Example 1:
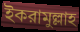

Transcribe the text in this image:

ইকরামুল্লাহ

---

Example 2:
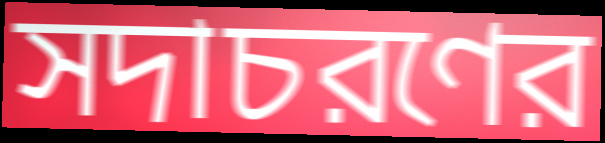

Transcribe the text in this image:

সদাচরণের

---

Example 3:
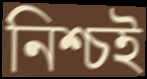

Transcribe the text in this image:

নিশ্চই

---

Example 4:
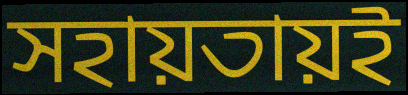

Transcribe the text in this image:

সহায়তায়ই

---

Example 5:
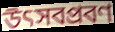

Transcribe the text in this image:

উৎসবপ্রবণ